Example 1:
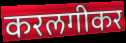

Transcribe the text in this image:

करलगीकर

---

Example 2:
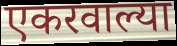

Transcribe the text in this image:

एकरवाल्या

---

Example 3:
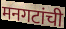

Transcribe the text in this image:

मनगटांची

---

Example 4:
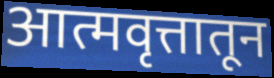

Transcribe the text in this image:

आत्मवृत्तातून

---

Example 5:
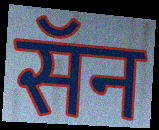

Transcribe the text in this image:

सॅन